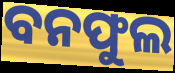
ବନଫୁଲ